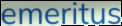
emeritus